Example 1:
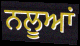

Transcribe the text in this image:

ਨਲੂਆਂ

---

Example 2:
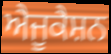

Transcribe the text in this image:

ਐਜੂਕੈਸ਼ਨ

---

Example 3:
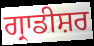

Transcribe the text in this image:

ਗ੍ਰਾਡੀਸ਼ਰ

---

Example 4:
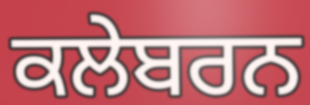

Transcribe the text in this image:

ਕਲੇਬਰਨ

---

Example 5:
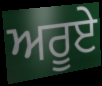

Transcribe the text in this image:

ਅਰੂਏ